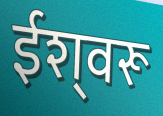
ईश्वरू